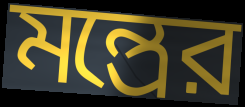
মন্ত্রের